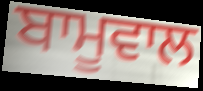
ਬਾਮੂਵਾਲ